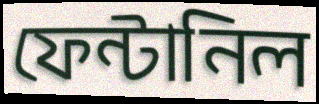
ফেন্টানিল